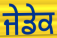
ਜੇਡੇਕ